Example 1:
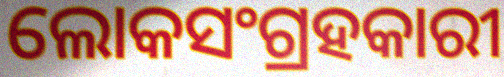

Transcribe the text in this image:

ଲୋକସଂଗ୍ରହକାରୀ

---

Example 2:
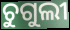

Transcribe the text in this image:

ଚୁଗୁଲୀ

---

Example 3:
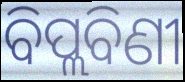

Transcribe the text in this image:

ବିପ୍ଲବିଣୀ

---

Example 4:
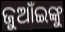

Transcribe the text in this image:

ଜୁଆଁଇଙ୍କୁ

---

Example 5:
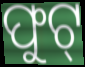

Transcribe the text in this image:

ଫୁଟ୍